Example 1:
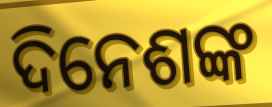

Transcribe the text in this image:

ଦିନେଶଙ୍କ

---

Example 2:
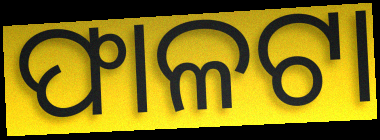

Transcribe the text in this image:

ଫାଳଟା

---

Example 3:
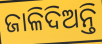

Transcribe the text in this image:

ଜାଳିଦିଅନ୍ତି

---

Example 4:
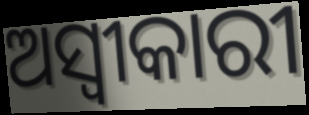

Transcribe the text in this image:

ଅସ୍ୱୀକାରୀ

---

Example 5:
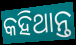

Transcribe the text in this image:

କହିଥାନ୍ତ